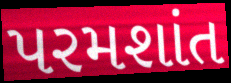
પરમશાંત